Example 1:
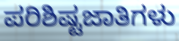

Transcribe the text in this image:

ಪರಿಶಿಷ್ಟಜಾತಿಗಳು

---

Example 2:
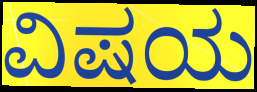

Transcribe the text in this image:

ವಿಷಯ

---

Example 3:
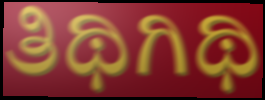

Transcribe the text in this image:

ತಿಥಿಗಿಥಿ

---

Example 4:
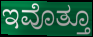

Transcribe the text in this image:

ಇವೊತ್ತೂ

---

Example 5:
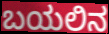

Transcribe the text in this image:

ಬಯಲಿನ